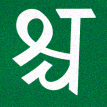
श्च